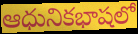
ఆధునికభాషలో